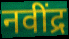
नवींद्र